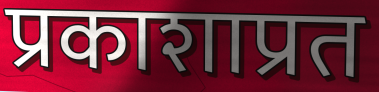
प्रकाशाप्रत